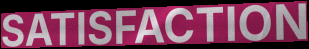
SATISFACTION